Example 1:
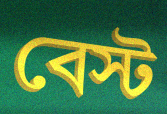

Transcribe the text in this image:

বেস্ট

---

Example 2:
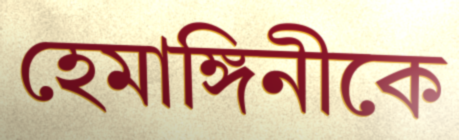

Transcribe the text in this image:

হেমাঙ্গিনীকে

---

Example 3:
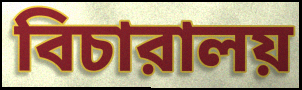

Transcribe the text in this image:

বিচারালয়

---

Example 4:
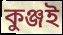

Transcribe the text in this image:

কুঞ্জই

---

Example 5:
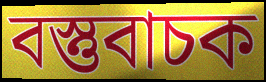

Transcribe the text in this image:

বস্তুবাচক